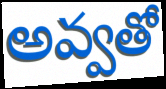
అవ్వతో